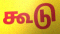
கூடு